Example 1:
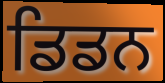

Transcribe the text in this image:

ਡਿਡਨ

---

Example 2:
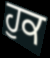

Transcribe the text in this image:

ਹੁਕ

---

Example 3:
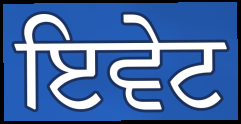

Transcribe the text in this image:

ਇਵੇਟ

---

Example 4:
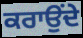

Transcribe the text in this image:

ਕਰਾਉਂਦੇ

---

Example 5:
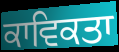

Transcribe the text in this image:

ਕਾਵਿਕਤਾ